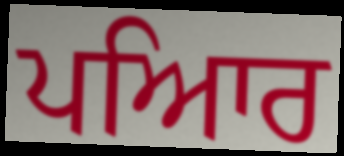
ਪਆਿਰ